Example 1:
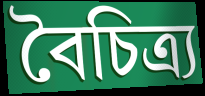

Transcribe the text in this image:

বৈচিত্ৰ্য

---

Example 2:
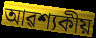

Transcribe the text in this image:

আৱশ্যকীয়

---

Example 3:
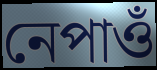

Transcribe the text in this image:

নেপাওঁ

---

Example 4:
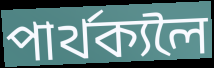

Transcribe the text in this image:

পাৰ্থক্যলৈ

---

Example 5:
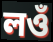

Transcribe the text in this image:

লওঁ